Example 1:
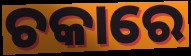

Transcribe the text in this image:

ଚକାରେ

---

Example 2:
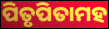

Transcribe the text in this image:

ପିତୃପିତାମହ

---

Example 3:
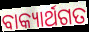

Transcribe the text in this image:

ବାକ୍ୟାର୍ଥଗତ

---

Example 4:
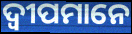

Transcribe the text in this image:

ଦ୍ୱୀପମାନେ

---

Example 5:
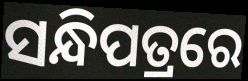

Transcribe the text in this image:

ସନ୍ଧିପତ୍ରରେ